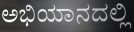
ಅಭಿಯಾನದಲ್ಲಿ